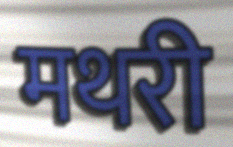
मथरी